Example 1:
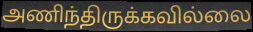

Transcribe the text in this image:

அணிந்திருக்கவில்லை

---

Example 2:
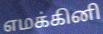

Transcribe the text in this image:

எமக்கினி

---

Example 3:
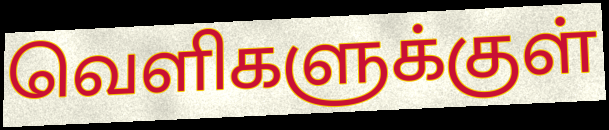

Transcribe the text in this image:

வெளிகளுக்குள்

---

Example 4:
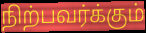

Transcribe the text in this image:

நிற்பவர்க்கும்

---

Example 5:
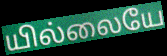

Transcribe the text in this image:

யில்லையே